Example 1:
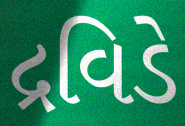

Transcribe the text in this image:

દ્રવિડે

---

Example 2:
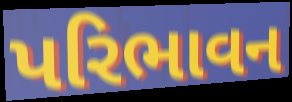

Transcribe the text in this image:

પરિભાવન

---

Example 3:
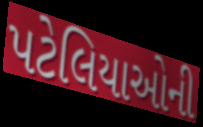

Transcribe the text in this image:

પટેલિયાઓની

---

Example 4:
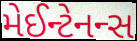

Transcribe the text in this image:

મેઈન્ટેનન્સ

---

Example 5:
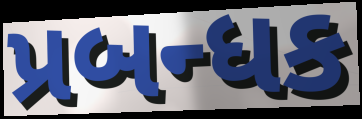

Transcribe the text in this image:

પ્રબન્ધક